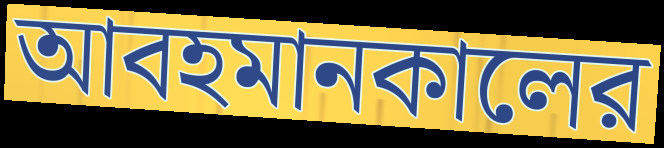
আবহমানকালের